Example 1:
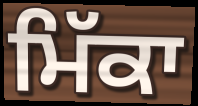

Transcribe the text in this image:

ਮਿੱਕਾ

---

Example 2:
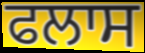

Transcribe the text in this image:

ਫਲਾਸ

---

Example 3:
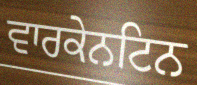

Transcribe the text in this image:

ਵਾਰਕੇਨਟਿਨ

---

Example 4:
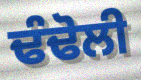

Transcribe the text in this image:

ਢੰਢੋਲੀ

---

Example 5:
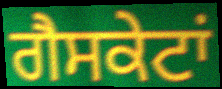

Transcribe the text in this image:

ਗੈਸਕੇਟਾਂ